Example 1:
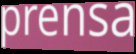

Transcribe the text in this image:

prensa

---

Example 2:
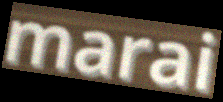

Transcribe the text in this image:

marai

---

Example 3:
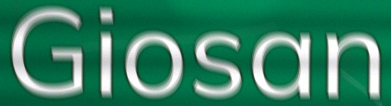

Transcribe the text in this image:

Giosan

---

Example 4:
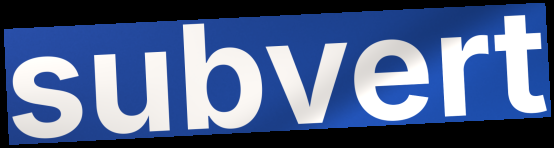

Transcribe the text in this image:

subvert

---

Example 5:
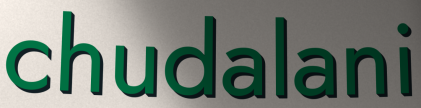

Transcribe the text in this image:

chudalani